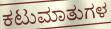
ಕಟುಮಾತುಗಳ